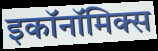
इकॉनॉमिक्‍स